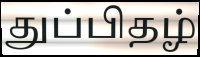
துப்பிதழ்